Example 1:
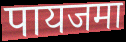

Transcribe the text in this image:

पायजमा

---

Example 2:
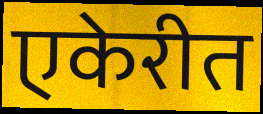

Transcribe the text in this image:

एकेरीत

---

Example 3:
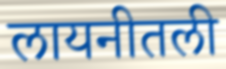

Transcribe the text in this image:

लायनीतली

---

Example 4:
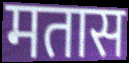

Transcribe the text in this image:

मतास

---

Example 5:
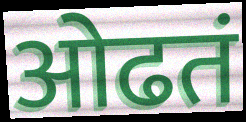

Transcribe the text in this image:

ओढतं